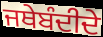
ਜਥੇਬੰਦੀਦੇ